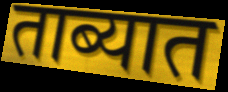
ताब्यात